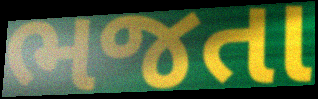
ભજતા